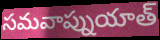
సమవాప్నుయాత్